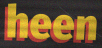
heen